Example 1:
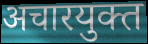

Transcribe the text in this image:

अचारयुक्त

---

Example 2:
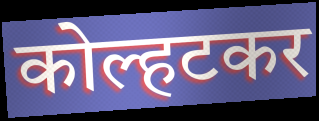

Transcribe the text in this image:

कोल्हटकर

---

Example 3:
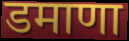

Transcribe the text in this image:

डमाणा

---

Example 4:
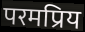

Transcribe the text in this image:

परमप्रिय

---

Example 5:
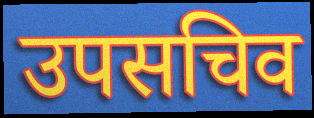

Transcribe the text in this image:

उपसचिव